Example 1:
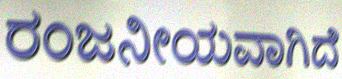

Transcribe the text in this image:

ರಂಜನೀಯವಾಗಿದೆ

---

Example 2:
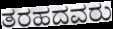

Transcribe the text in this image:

ತರಹದವರು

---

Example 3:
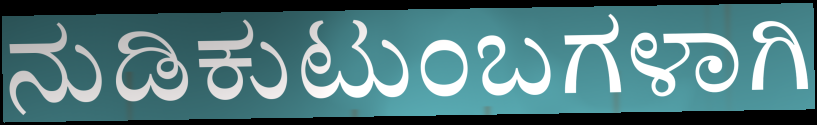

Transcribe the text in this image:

ನುಡಿಕುಟುಂಬಗಳಾಗಿ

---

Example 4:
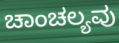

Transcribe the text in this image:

ಚಾಂಚಲ್ಯವು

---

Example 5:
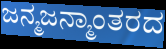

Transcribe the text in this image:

ಜನ್ಮಜನ್ಮಾಂತರದ